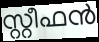
സ്റ്റീഫൻ